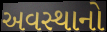
અવસ્થાનો